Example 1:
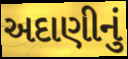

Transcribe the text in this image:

અદાણીનું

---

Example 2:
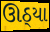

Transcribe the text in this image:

ઊઠ્યા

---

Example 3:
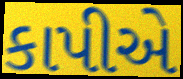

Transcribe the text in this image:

કાપીએ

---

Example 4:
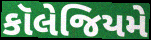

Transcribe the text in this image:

કૉલેજિયમે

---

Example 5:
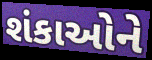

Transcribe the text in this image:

શંકાઓને